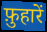
फ़ुहारें